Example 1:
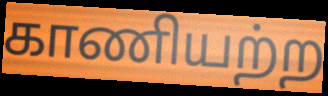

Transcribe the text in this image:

காணியற்ற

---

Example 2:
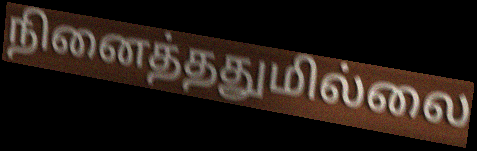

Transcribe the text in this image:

நினைத்ததுமில்லை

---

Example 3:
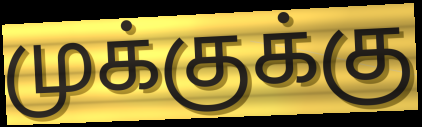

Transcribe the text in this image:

முக்குக்கு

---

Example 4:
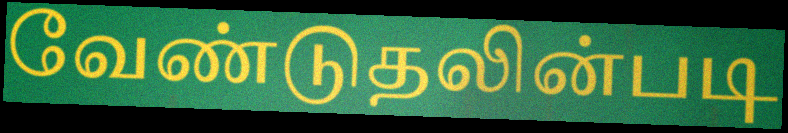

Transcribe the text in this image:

வேண்டுதலின்படி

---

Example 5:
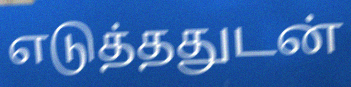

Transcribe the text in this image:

எடுத்ததுடன்